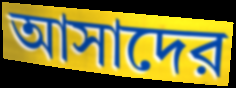
আসাদের